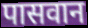
पासवान